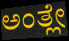
ಅಂತ್ಲೇ